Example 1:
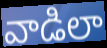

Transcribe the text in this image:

వాడిలా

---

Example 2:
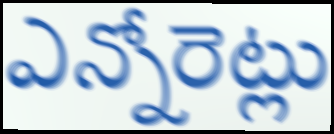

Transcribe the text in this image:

ఎన్నోరెట్లు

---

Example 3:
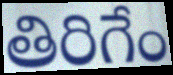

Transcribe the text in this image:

తిరిగేం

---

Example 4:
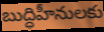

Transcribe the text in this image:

బుద్ధిహీనులకు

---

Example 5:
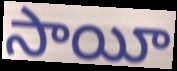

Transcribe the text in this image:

సాయీ